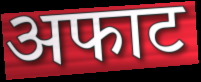
अफाट